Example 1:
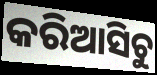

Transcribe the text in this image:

କରିଆସିଚୁ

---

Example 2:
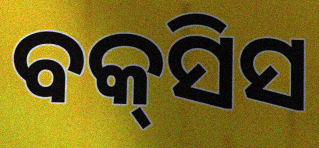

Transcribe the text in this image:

ବକ୍‍ସିସ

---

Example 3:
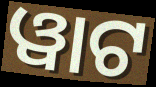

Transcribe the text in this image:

ୱାଟ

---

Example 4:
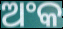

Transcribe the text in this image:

ଅଂକ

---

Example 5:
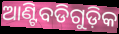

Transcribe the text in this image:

ଆଣ୍ଟିବଡିଗୁଡ଼ିକ